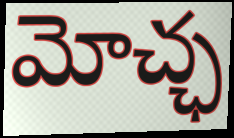
మోచ్ఛ